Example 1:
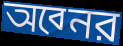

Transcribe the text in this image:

অব্নের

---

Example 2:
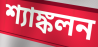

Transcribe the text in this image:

শ্যাঙ্কলন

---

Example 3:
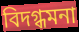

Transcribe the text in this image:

বিদগ্ধমনা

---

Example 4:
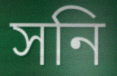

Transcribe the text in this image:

সনি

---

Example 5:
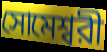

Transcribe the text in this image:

সোমেশ্বরী